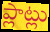
ప్లాట్లు